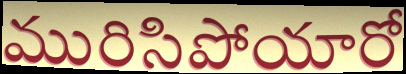
మురిసిపోయారో